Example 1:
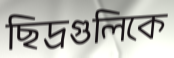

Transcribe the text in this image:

ছিদ্রগুলিকে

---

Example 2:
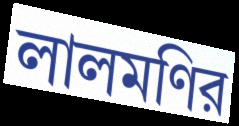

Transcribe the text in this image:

লালমণির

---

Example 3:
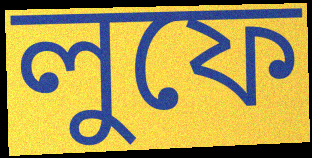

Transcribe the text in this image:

লুফে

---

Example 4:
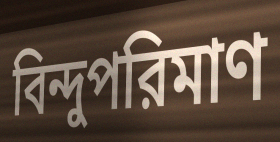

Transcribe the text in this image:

বিন্দুপরিমাণ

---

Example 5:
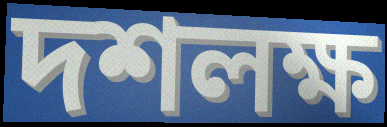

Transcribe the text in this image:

দশলক্ষ